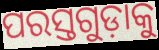
ପରସ୍ତଗୁଡ଼ାକୁ